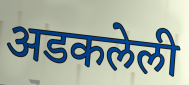
अडकलेली